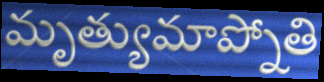
మృత్యుమాప్నోతి